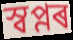
স্বপ্নৰ